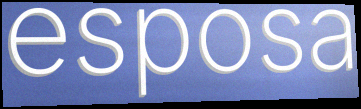
esposa